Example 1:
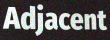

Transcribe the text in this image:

Adjacent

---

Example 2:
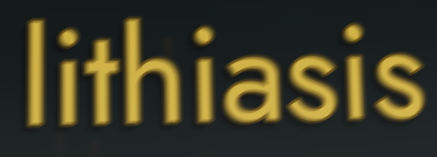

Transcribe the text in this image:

lithiasis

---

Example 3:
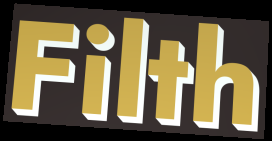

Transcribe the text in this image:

Filth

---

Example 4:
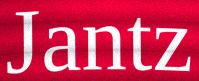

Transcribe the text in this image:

Jantz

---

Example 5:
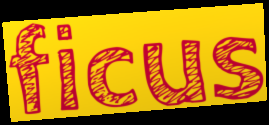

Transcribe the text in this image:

ficus